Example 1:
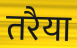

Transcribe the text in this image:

तरैया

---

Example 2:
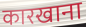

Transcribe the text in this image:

कारखाना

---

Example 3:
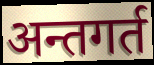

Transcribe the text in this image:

अन्तगर्त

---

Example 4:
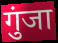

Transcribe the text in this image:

गुंजा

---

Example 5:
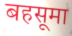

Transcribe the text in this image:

बहसूमा